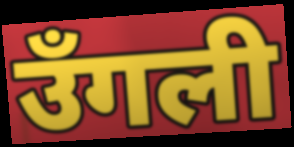
उँगली